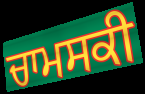
ਚਾਮਸਕੀ